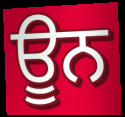
ਊਨ